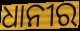
ଧାନୀର